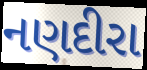
નણદીરા